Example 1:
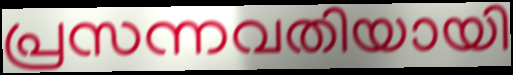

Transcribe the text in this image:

പ്രസന്നവതിയായി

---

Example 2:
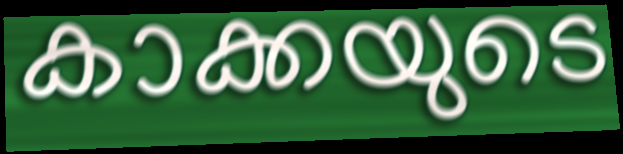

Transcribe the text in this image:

കാക്കയുടെ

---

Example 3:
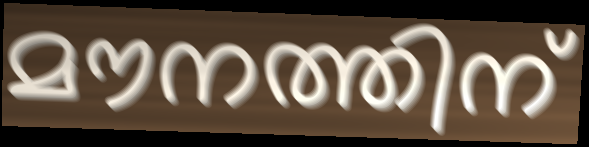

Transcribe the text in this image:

മൗനത്തിന്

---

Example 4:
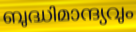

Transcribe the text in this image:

ബുദ്ധിമാന്ദ്യവും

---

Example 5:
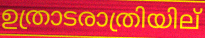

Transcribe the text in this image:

ഉത്രാടരാത്രിയില്